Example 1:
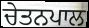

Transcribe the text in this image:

ਚੇਤਨਪਾਲ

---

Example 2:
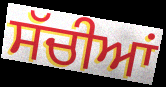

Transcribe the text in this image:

ਸੱਚੀਆਂ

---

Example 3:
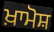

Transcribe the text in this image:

ਖ਼ਾਮੋਸ਼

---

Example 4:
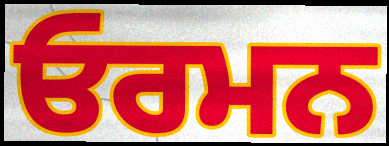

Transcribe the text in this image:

ਓਰਮਨ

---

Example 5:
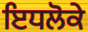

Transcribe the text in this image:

ਇਧਲੋਕੇ